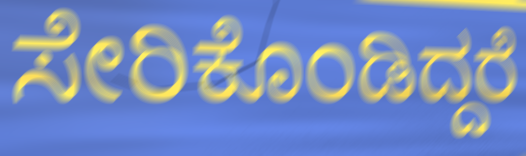
ಸೇರಿಕೊಂಡಿದ್ದರೆ